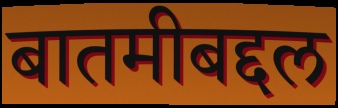
बातमीबद्दल